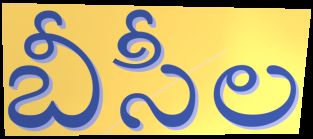
బీసీల